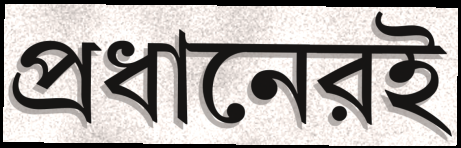
প্রধানেরই